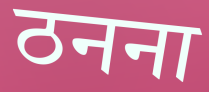
ठनना